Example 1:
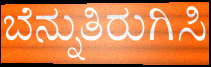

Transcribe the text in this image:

ಬೆನ್ನುತಿರುಗಿಸಿ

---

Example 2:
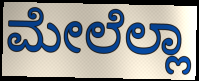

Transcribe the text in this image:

ಮೇಲೆಲ್ಲಾ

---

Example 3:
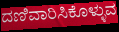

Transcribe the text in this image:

ದಣಿವಾರಿಸಿಕೊಳ್ಳುವ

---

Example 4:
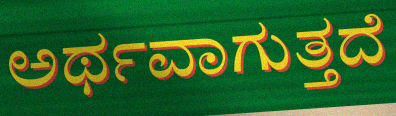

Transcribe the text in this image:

ಅರ್ಥವಾಗುತ್ತದೆ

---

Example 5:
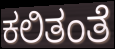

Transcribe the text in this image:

ಕಲಿತಂತೆ